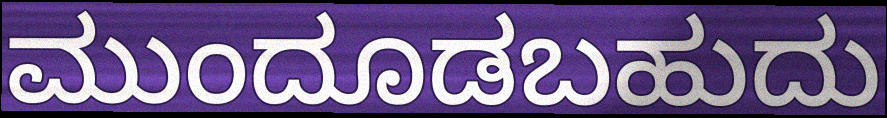
ಮುಂದೂಡಬಹುದು